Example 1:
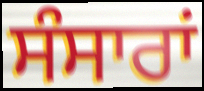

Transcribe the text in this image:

ਸੰਸਾਰਾਂ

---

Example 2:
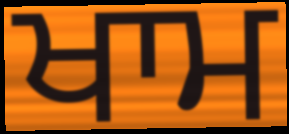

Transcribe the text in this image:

ਖਾਮ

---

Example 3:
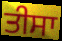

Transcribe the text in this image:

ਤੀਸਾ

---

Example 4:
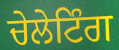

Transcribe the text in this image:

ਚੇਲੇਟਿੰਗ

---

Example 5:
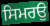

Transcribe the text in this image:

ਸਿਮਰਉ